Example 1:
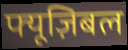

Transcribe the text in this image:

फ्यूज़िबल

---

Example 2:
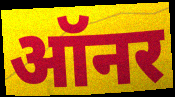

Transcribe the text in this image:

ऑनर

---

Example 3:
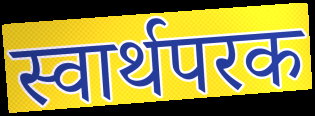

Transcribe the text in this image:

स्वार्थपरक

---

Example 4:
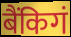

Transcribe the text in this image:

बैंकिगं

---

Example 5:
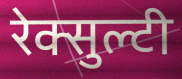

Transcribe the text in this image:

रेक्सुल्टी